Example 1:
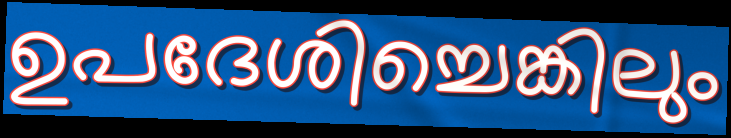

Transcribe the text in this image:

ഉപദേശിച്ചെങ്കിലും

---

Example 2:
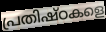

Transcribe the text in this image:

പ്രതിഷ്ഠകളെ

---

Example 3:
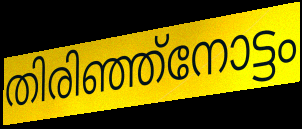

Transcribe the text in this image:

തിരിഞ്ഞ്നോട്ടം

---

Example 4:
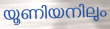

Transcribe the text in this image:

യൂണിയനിലും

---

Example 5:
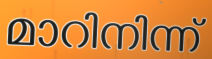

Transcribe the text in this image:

മാറിനിന്ന്